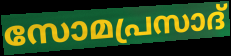
സോമപ്രസാദ്